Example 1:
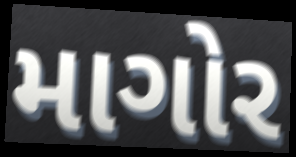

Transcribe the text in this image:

માગોર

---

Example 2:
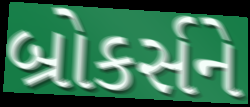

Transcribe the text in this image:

બ્રોકર્સને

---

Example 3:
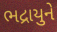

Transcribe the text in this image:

ભદ્રાયુને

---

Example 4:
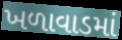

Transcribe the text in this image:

ખળાવાડમાં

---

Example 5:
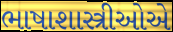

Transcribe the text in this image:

ભાષાશાસ્ત્રીઓએ